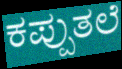
ಕಪ್ಪುತಲೆ